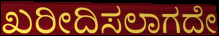
ಖರೀದಿಸಲಾಗದೇ